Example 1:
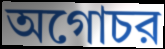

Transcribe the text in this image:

অগোচর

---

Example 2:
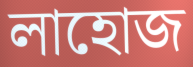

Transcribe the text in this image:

লাহোজ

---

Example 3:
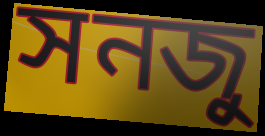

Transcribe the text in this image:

সনজু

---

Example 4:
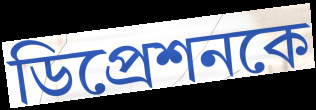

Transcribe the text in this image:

ডিপ্রেশনকে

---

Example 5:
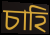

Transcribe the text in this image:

চাহি